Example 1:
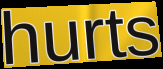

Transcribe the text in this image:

hurts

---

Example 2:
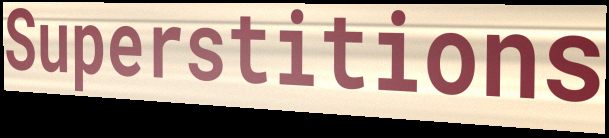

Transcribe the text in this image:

Superstitions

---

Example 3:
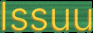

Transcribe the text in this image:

Issuu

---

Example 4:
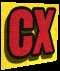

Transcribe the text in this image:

cx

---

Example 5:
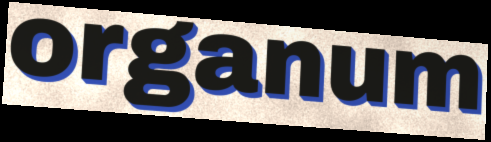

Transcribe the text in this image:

organum